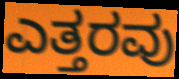
ಎತ್ತರವು